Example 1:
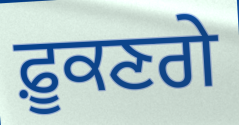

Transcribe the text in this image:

ਫ਼ੂਕਣਗੇ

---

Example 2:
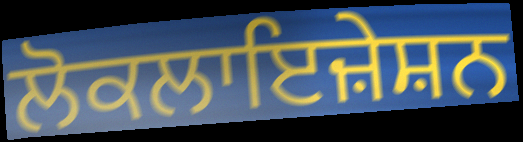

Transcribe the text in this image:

ਲੋਕਲਾਇਜ਼ੇਸ਼ਨ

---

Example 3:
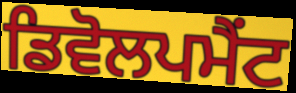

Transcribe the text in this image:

ਡਿਵੋਲਪਮੈਂਟ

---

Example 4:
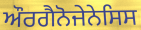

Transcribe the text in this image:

ਔਰਗੈਨੋਜੇਨੇਸਿਸ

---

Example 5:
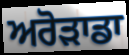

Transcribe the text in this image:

ਅਰੋੜਾਡਾ